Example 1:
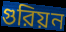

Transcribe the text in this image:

গুরিয়ন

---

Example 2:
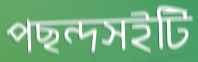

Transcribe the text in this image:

পছন্দসইটি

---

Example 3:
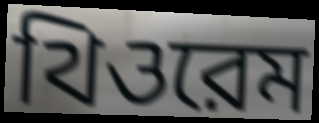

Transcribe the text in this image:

থিওরেম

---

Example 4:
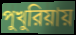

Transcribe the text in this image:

পুখুরিয়ায়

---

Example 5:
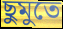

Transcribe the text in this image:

ছুমুতে